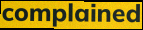
complained